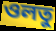
ওলতু